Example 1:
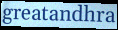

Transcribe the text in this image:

greatandhra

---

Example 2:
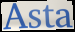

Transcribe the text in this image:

Asta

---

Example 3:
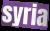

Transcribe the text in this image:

syria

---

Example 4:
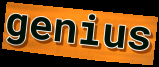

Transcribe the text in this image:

genius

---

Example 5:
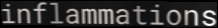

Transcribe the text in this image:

inflammations